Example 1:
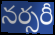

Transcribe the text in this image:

నర్సరీ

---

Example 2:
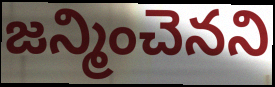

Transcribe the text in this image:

జన్మించెనని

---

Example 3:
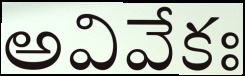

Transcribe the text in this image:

అవివేకః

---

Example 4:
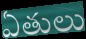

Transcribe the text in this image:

ఏతులు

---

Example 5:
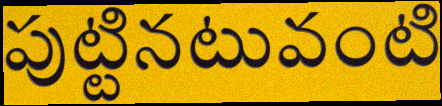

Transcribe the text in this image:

పుట్టినటువంటి